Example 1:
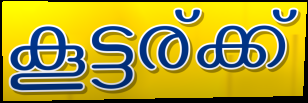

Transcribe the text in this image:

കൂട്ടര്ക്ക്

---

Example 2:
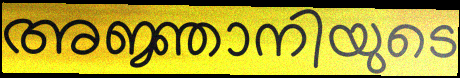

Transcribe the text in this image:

അജ്ഞാനിയുടെ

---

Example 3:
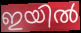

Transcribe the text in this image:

ഇയിൽ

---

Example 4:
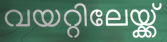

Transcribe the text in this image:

വയറ്റിലേയ്ക്ക്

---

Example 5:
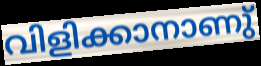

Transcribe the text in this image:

വിളിക്കാനാണു്